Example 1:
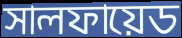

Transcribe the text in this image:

সালফায়েড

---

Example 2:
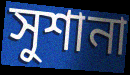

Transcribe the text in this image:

সুশানা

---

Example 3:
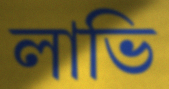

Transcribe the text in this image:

লাভি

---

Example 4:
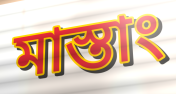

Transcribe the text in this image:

মাস্তাং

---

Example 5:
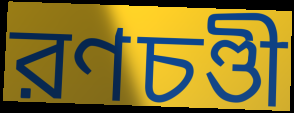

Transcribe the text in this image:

রণচণ্ডী